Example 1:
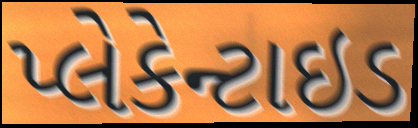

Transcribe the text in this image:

પ્લેકેન્ટાઇડ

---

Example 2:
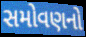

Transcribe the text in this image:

સમોવણનો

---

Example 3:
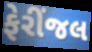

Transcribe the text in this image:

ફેરીંજલ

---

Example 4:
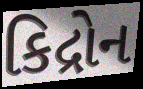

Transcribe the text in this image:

કિદ્રોન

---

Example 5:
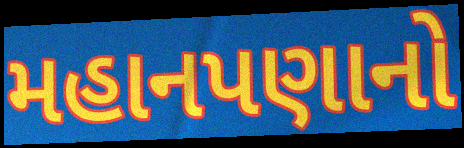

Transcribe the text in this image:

મહાનપણાનો